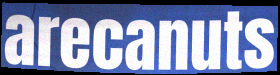
arecanuts